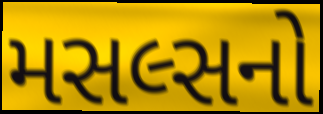
મસલ્સનો